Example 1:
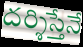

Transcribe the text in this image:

దర్శిస్తేనే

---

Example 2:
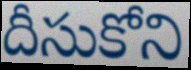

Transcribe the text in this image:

దీసుకోని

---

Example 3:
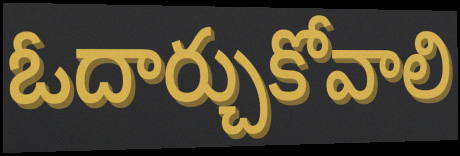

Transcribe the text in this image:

ఓదార్చుకోవాలి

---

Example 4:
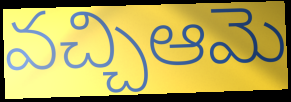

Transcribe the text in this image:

వచ్చిఆమె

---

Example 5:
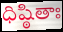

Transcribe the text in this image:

ధిష్ఠితాః